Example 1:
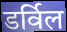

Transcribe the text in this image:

डर्विल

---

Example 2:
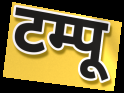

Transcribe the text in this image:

टम्पू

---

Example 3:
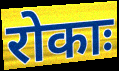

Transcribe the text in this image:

रोकाः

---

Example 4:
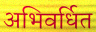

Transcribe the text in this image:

अभिवर्धित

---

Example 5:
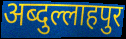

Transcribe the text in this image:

अब्दुल्लाहपुर